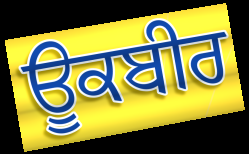
ਊਕਬੀਰ